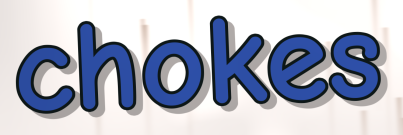
chokes